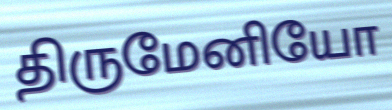
திருமேனியோ